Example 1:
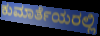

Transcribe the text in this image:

ಕುಮಾರ್ತೆಯರಲ್ಲಿ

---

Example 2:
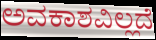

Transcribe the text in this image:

ಅವಕಾಶವಿಲ್ಲದೆ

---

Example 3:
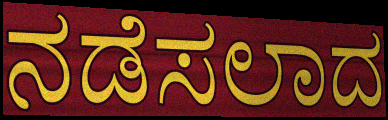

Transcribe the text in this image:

ನಡೆಸಲಾದ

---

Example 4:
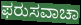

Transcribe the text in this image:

ಫರುಸವಾಚಾ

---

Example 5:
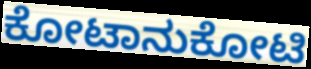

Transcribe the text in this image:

ಕೋಟಾನುಕೋಟಿ